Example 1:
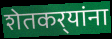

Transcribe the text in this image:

शेतकर्‍यांना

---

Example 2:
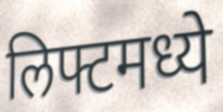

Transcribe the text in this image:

लिफ्टमध्ये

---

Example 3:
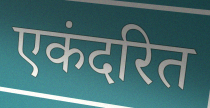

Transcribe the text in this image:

एकंदरित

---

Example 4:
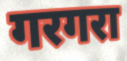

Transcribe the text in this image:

गरगरा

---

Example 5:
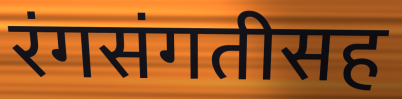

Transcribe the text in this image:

रंगसंगतीसह